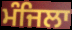
ਮੰਜਿਲਾ